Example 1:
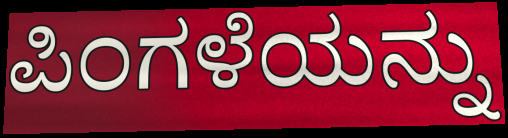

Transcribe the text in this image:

ಪಿಂಗಳೆಯನ್ನು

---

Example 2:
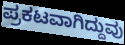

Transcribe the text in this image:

ಪ್ರಕಟವಾಗಿದ್ದುವು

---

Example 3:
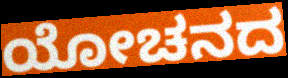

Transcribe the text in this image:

ಯೋಚನದ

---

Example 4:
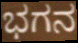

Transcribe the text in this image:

ಭಗನ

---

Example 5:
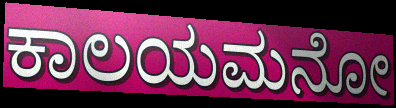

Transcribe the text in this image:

ಕಾಲಯಮನೋ